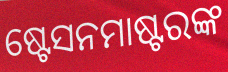
ଷ୍ଟେସନମାଷ୍ଟରଙ୍କ